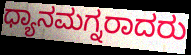
ಧ್ಯಾನಮಗ್ನರಾದರು